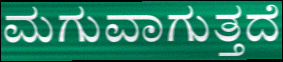
ಮಗುವಾಗುತ್ತದೆ